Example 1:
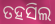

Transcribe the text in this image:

ତହସିଲ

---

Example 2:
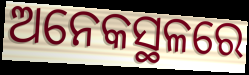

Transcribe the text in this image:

ଅନେକସ୍ଥଳରେ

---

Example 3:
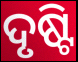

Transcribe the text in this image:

ଦୃଷ୍ଟି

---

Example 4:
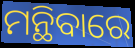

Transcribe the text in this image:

ମନ୍ଥିବାରେ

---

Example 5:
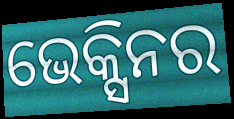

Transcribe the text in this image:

ଭେକ୍ସିନର